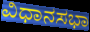
ವಿಧಾನಸಭಾ